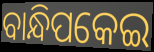
ବାନ୍ଧିପକେଇ